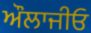
ਔਲਾਜੀਓ